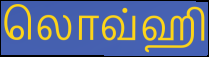
லொவ்ஹி